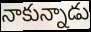
నాకున్నాడు